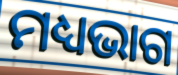
ମଧ୍ୟଭାଗ